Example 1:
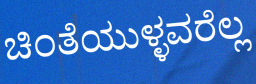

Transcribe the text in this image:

ಚಿಂತೆಯುಳ್ಳವರೆಲ್ಲ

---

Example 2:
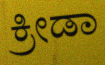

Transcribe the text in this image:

ಕ್ರೀಡಾ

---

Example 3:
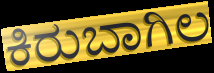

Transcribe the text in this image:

ಕಿರುಬಾಗಿಲ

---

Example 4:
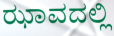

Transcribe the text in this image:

ಝಾವದಲ್ಲಿ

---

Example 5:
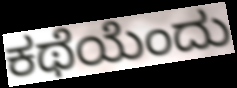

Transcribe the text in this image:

ಕಥೆಯೆಂದು